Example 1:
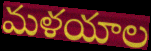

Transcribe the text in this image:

మళయాల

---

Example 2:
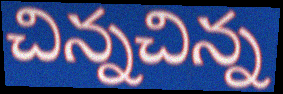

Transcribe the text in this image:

చిన్నచిన్న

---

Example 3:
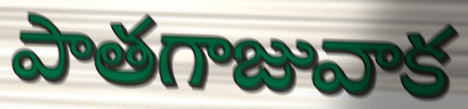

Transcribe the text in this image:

పాతగాజువాక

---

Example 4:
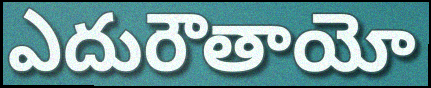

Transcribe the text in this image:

ఎదురౌతాయో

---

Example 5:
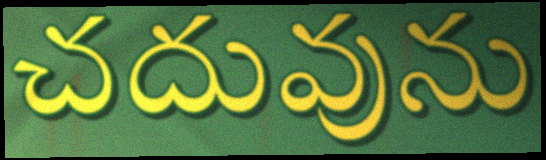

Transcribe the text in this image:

చదువును